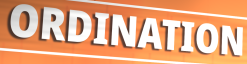
ORDINATION